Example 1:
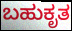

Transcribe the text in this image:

ಬಹುಕೃತ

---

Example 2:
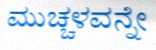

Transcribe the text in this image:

ಮುಚ್ಚಳವನ್ನೇ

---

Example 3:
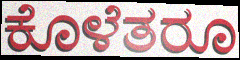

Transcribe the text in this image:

ಕೊಳೆತರೂ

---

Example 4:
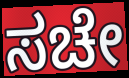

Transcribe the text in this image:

ಸಚೇ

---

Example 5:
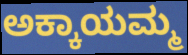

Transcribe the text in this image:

ಅಕ್ಕಾಯಮ್ಮ